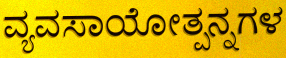
ವ್ಯವಸಾಯೋತ್ಪನ್ನಗಳ